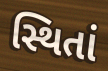
સ્થિતાં